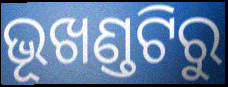
ଭୂଖଣ୍ଡଟିରୁ